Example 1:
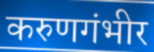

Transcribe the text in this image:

करुणगंभीर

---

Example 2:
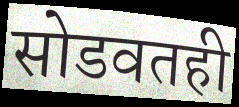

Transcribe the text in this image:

सोडवतही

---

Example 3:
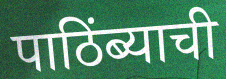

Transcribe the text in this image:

पाठिंब्याची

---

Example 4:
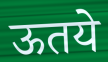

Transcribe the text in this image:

ऊतये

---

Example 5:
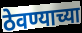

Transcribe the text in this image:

ठेवण्याच्या